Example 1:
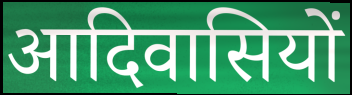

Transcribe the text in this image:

आदिवासियों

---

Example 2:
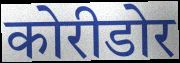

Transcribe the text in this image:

कोरीडोर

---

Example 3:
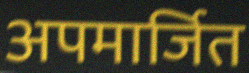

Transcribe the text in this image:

अपमार्जित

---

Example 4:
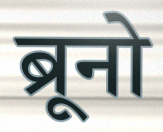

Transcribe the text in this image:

ब्रूनो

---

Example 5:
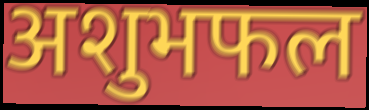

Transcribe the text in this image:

अशुभफल